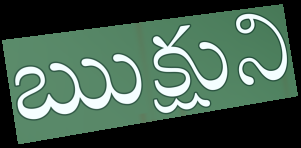
ఋక్షుని